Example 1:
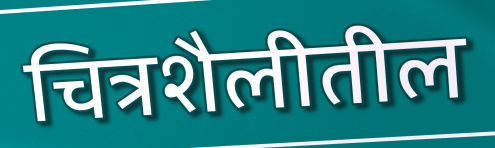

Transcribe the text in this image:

चित्रशैलीतील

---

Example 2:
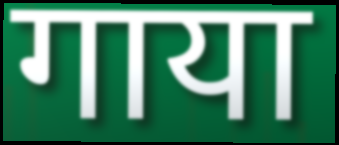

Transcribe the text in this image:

गाया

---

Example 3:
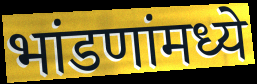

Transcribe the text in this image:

भांडणांमध्ये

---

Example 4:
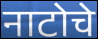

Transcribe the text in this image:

नाटोचे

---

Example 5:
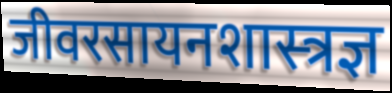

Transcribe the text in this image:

जीवरसायनशास्त्रज्ञ